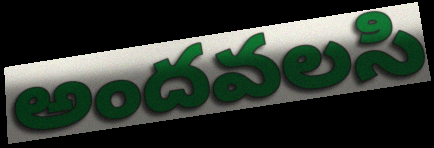
అందవలసి